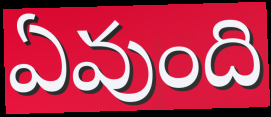
ఏవుంది